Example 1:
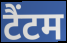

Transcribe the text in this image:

टैंटम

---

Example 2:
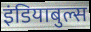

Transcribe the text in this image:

इंडियाबुल्‍स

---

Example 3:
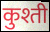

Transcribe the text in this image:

कुश्ती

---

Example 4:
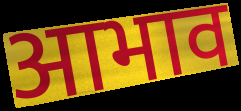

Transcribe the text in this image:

आभाव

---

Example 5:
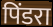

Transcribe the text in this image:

पिंडरा